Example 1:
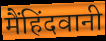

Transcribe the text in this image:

मैंहिंदवानी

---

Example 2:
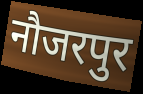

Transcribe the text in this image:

नौजरपुर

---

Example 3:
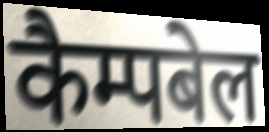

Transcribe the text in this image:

कैम्पबेल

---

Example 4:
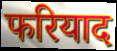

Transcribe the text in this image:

फरियाद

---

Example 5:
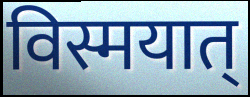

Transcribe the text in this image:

विस्मयात्